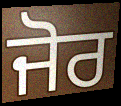
ਜੋਰ